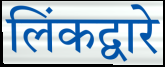
लिंकद्वारे